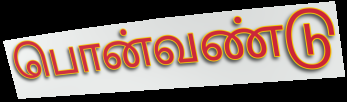
பொன்வண்டு